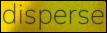
disperse